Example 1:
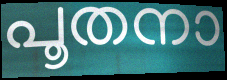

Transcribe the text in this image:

പൂതനാ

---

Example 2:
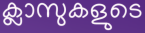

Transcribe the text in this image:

ക്ലാസുകളുടെ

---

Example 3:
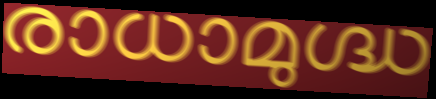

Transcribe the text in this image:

രാധാമുഗ്ദ്ധ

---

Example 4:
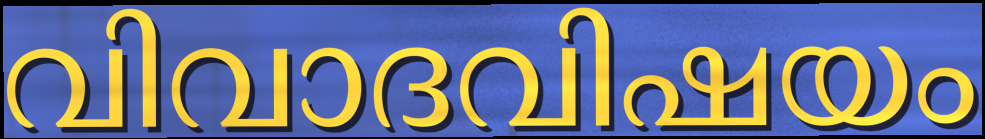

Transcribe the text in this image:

വിവാദവിഷയം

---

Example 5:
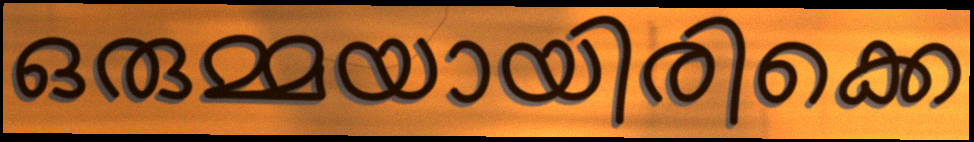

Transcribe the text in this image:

ഒരുമ്മയായിരിക്കെ